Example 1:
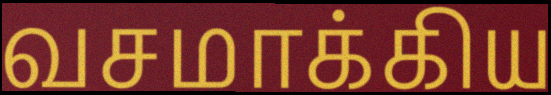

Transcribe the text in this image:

வசமாக்கிய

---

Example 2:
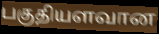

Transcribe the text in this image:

பகுதியளவான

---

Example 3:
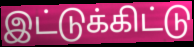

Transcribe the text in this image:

இட்டுக்கிட்டு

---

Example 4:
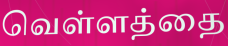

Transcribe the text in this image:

வெள்ளத்தை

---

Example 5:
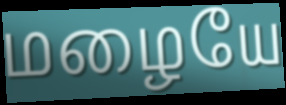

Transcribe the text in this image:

மழையே